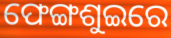
ଫେଙ୍ଗଶୁଇରେ